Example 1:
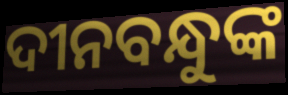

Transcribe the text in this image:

ଦୀନବନ୍ଧୁଙ୍କ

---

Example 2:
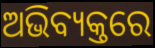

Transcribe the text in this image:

ଅଭିବ୍ୟକ୍ତରେ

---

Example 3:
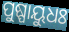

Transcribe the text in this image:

ପୁଷ୍ପାୟୁଧଃ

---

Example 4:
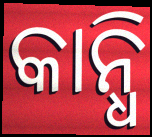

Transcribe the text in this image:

କାନ୍ଧି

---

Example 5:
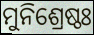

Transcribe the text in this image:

ମୁନିଶ୍ରେଷ୍ଠଃ